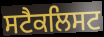
ਸਟੈਕਲਿਸਟ